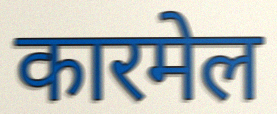
कारमेल